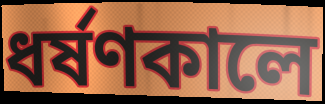
ধর্ষণকালে